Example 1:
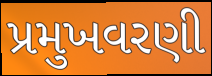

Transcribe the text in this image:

પ્રમુખવરણી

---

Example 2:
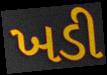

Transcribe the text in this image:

ખડી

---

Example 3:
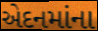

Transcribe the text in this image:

એદનમાંના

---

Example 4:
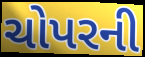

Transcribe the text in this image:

ચોપરની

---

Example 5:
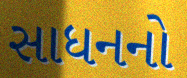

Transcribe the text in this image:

સાધનનો